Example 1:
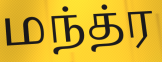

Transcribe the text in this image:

மந்த்ர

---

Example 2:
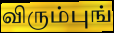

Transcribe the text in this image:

விரும்புங்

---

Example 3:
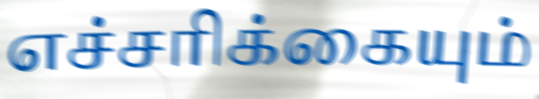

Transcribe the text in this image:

எச்சரிக்கையும்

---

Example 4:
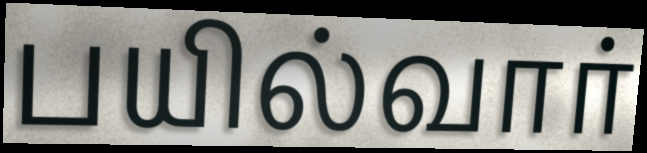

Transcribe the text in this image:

பயில்வார்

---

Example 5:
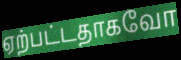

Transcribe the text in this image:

ஏற்பட்டதாகவோ